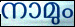
നാമും